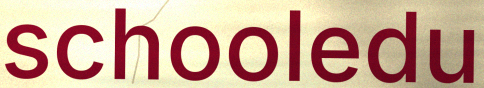
schooledu